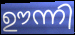
ഊന്നി